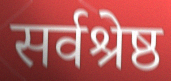
सर्वश्रेष्ठ